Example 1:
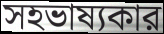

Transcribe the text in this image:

সহভাষ্যকার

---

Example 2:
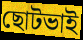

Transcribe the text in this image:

ছোটভাই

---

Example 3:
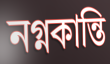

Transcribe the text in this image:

নগ্নকান্তি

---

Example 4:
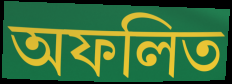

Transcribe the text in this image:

অফলিত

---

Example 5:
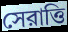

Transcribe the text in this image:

সেরাত্তি